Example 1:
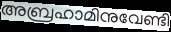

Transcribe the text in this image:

അബ്രഹാമിനുവേണ്ടി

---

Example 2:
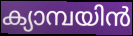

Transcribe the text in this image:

ക്യാമ്പയിൻ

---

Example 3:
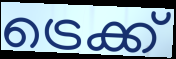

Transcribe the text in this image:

ട്രെക്ക്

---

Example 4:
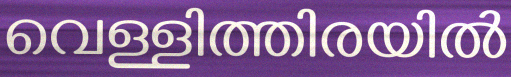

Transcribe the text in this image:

വെള്ളിത്തിരയിൽ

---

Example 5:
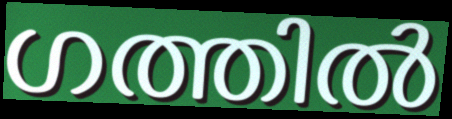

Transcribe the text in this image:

ഗത്തിൽ